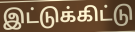
இட்டுக்கிட்டு